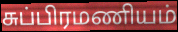
சுப்பிரமணியம்